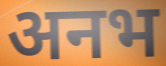
अनभ